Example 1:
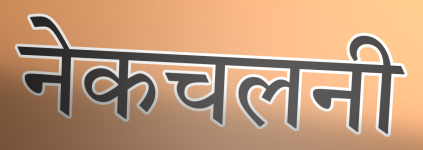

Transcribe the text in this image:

नेकचलनी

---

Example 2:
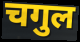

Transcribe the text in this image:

चगुल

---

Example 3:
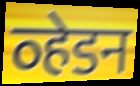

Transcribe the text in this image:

व्हेडन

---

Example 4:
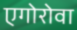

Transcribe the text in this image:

एगोरोवा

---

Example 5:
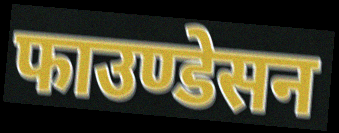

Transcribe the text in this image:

फाउण्डेसन